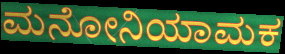
ಮನೋನಿಯಾಮಕ